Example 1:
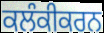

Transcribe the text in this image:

ਕਲੰਕੀਕਰਨ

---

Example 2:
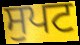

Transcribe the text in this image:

ਸੁਪਟ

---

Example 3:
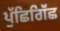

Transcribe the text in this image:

ਪੁੱਛਿਗਿੱਛ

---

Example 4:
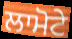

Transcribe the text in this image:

ਲਾਮੋਟੇ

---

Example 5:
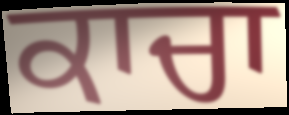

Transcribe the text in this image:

ਕਾਚਾ